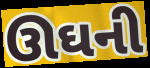
ઊઘની